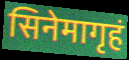
सिनेमागृहं